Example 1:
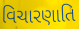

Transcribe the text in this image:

વિચારણાતિ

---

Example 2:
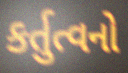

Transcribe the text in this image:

કર્તુત્વનો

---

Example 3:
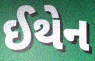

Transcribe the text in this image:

ઈથેન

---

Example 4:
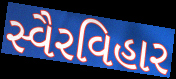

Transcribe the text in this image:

સ્વૈરવિહાર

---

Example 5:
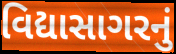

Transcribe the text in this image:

વિદ્યાસાગરનું